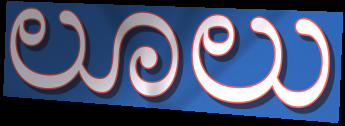
ಲೂಲು